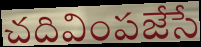
చదివింపజేసే